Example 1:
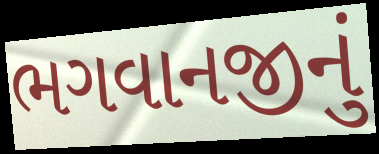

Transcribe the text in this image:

ભગવાનજીનું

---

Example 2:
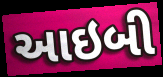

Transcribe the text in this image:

આઇબી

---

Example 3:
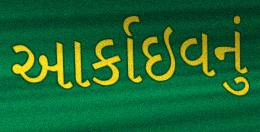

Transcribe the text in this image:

આર્કાઇવનું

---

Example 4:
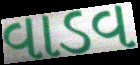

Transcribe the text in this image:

વાડવ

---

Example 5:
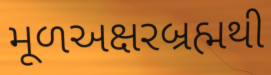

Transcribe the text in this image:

મૂળઅક્ષરબ્રહ્મથી